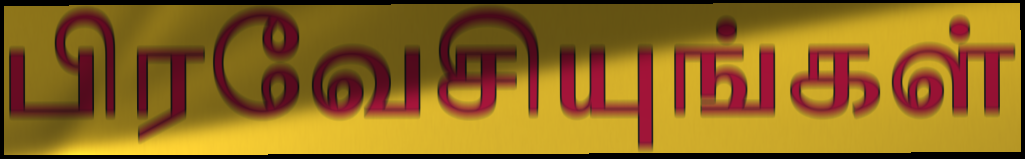
பிரவேசியுங்கள்